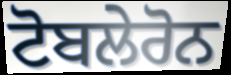
ਟੋਬਲੇਰੋਨ